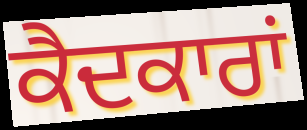
ਕੈਦਕਾਰਾਂ